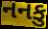
નનકુ